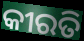
କୀରତି